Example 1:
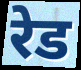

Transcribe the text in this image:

रेड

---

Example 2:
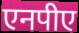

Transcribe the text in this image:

एनपीए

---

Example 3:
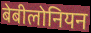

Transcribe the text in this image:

बेबीलोनियन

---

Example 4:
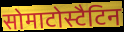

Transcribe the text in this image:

सोमाटोस्टैटिन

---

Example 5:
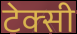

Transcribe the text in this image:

टेक्‍सी